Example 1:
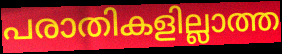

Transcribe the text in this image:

പരാതികളില്ലാത്ത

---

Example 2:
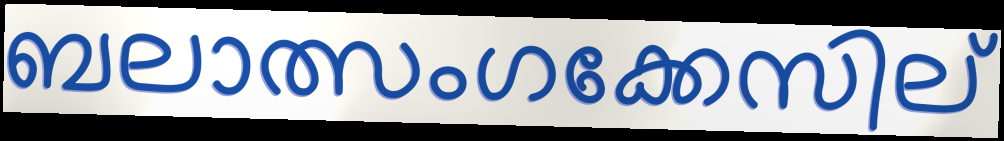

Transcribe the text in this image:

ബലാത്സംഗക്കേസില്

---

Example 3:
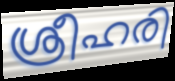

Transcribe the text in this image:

ശ്രീഹരി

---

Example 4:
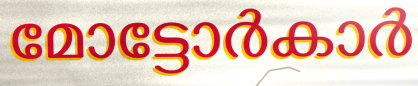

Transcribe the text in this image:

മോട്ടോർകാർ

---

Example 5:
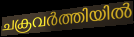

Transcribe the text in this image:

ചക്രവർത്തിയിൽ